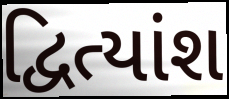
દ્વિત્યાંશ